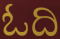
ಓದಿ